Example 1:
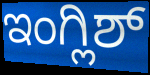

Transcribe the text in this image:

ಇಂಗ್ಲಿಶ್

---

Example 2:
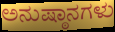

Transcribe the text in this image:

ಅನುಷ್ಠಾನಗಳು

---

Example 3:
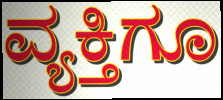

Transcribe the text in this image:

ವ್ಯಕ್ತಿಗೂ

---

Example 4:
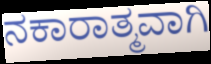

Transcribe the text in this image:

ನಕಾರಾತ್ಮವಾಗಿ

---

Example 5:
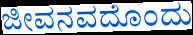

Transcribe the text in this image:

ಜೀವನವದೊಂದು